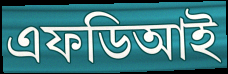
এফডিআই